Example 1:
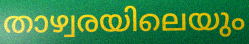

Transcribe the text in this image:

താഴ്വരയിലെയും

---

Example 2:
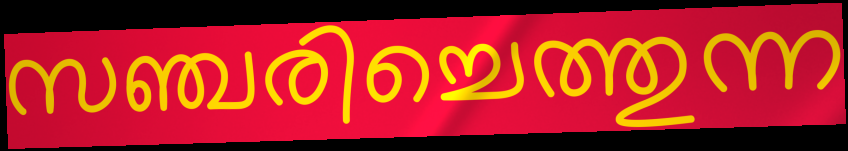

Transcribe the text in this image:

സഞ്ചരിച്ചെത്തുന്ന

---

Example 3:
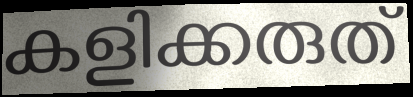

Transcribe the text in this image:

കളിക്കരുത്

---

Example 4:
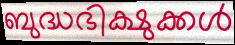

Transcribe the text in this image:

ബുദ്ധഭിക്ഷുക്കൾ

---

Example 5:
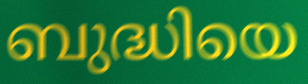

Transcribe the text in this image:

ബുദ്ധിയെ